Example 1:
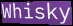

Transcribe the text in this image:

Whisky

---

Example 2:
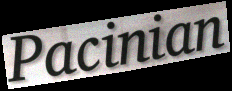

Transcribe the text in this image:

Pacinian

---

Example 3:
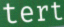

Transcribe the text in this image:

tert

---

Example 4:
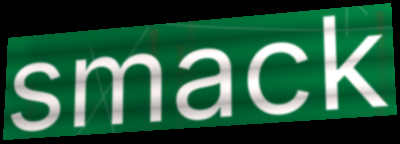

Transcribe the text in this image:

smack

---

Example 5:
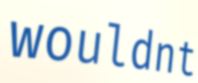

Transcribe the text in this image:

wouldnt